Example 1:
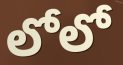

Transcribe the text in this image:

లోలో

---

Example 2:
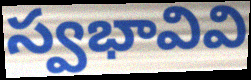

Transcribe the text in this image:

స్వభావివి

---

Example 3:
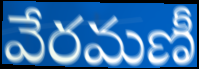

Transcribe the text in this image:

వేరమణీ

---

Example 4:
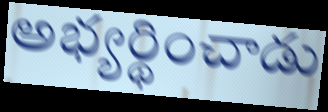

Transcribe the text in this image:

అభ్యర్థించాడు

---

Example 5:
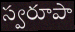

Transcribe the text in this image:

స్వరూపా